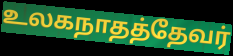
உலகநாதத்தேவர்